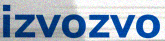
izvozvo